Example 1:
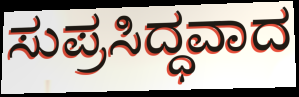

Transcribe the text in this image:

ಸುಪ್ರಸಿದ್ಧವಾದ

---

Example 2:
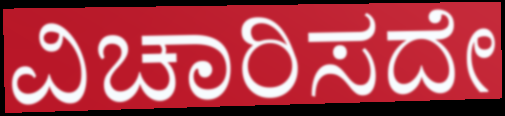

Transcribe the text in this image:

ವಿಚಾರಿಸದೇ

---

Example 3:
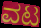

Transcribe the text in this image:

ವಟ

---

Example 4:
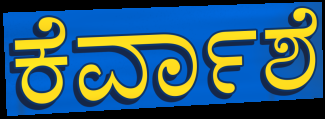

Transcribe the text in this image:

ಕೆರ್ವಾಶೆ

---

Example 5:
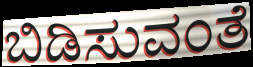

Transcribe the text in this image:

ಬಿಡಿಸುವಂತೆ